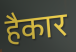
हैकार